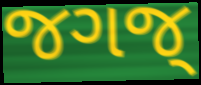
જગજ્